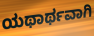
ಯಥಾರ್ಥವಾಗಿ